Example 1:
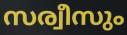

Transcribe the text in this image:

സര്വീസും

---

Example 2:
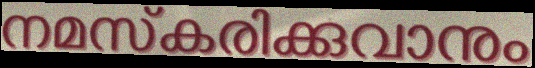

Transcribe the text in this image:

നമസ്‌കരിക്കുവാനും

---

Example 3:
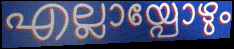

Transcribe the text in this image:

എല്ലായ്പോഴും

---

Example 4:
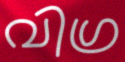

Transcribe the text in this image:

വിഗ്ര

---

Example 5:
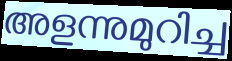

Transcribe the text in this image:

അളന്നുമുറിച്ച